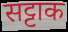
सट्टाक